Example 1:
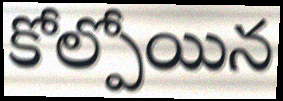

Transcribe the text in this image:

కోల్పోయిన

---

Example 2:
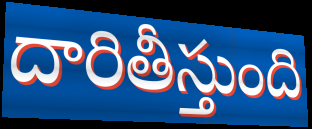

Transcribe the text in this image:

దారితీస్తుంది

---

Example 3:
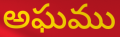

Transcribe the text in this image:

అఘము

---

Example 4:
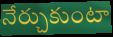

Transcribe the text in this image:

నేర్చుకుంటా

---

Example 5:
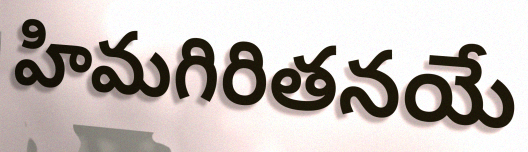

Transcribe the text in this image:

హిమగిరితనయే